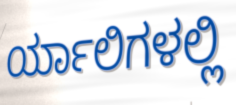
ರ್ಯಾಲಿಗಳಲ್ಲಿ